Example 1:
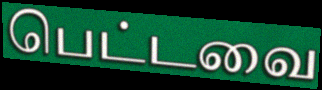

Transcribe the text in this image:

பெட்டவை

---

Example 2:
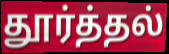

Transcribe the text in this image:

தூர்த்தல்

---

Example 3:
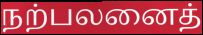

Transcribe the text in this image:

நற்பலனைத்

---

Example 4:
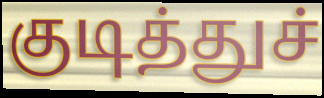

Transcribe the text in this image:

குடித்துச்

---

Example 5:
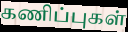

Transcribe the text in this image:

கணிப்புகள்